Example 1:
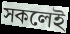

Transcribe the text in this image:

সকলেই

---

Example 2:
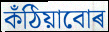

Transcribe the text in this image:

কঁঠিয়াবোৰ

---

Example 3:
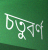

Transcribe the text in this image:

চতুবৰ্ণ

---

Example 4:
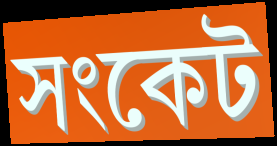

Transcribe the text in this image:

সংকেট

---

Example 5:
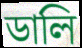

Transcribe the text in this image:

ডালি